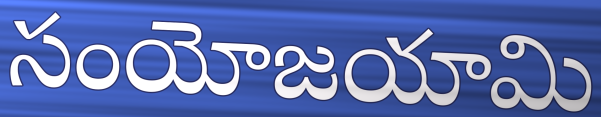
సంయోజయామి